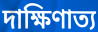
দাক্ষিণাত্য